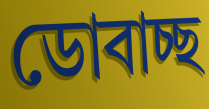
ডোবাচ্ছ